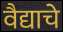
वैद्याचे